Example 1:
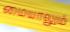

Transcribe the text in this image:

மையாலும்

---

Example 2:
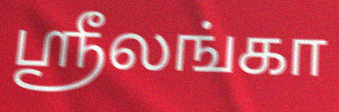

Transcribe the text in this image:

ஶ்ரீலங்கா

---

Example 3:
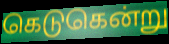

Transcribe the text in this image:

கெடுகென்று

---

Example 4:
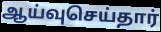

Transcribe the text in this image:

ஆய்வுசெய்தார்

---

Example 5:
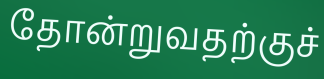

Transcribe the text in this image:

தோன்றுவதற்குச்